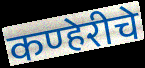
कण्हेरीचे